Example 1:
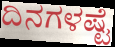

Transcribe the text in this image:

ದಿನಗಳಷ್ಟೆ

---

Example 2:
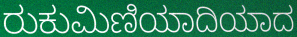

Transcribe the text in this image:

ರುಕುಮಿಣಿಯಾದಿಯಾದ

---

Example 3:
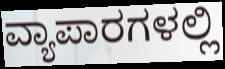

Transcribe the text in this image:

ವ್ಯಾಪಾರಗಳಲ್ಲಿ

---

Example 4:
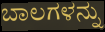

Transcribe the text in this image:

ಬಾಲಗಳನ್ನು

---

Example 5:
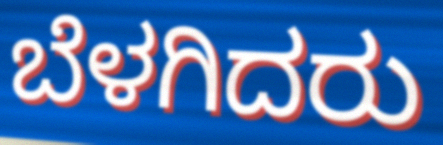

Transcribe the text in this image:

ಬೆಳಗಿದರು